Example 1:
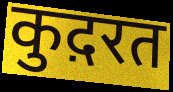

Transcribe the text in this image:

कुद़रत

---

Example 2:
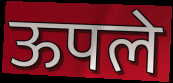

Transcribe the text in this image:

ऊपले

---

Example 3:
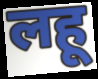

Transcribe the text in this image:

लहू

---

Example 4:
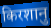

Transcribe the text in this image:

किरशानु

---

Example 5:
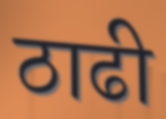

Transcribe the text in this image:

ठाढी